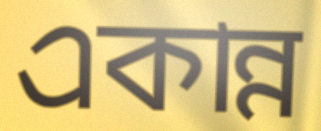
একান্ন